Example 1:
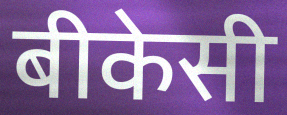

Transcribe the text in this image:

बीकेसी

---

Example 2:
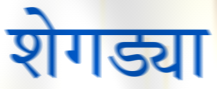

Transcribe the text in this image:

शेगड्या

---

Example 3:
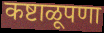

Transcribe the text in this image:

कष्टाळूपणा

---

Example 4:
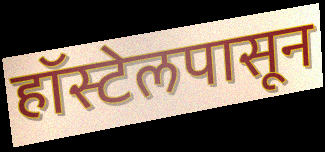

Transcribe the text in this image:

हॉस्टेलपासून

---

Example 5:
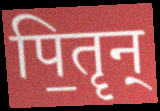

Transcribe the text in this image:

पि॒तॄन्